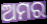
ଅମର